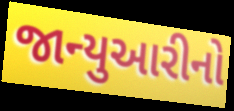
જાન્યુઆરીનો